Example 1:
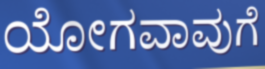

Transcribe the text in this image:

ಯೋಗವಾವುಗೆ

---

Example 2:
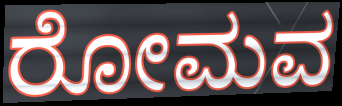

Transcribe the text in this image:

ರೋಮವ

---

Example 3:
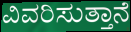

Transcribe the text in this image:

ವಿವರಿಸುತ್ತಾನೆ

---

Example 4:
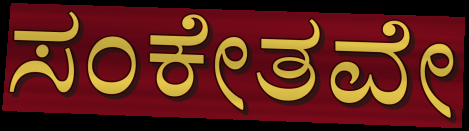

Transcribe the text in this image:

ಸಂಕೇತವೇ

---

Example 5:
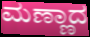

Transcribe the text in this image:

ಮಣ್ಣಾದ